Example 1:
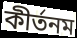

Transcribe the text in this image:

কীর্তনম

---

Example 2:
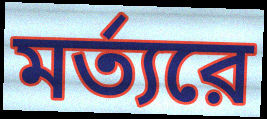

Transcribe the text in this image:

মর্ত্যরে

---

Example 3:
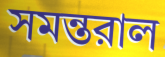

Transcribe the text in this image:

সমন্তরাল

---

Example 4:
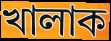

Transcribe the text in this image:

খালাক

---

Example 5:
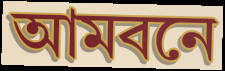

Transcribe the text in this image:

আমবনে